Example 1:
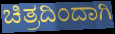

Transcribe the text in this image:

ಚಿತ್ರದಿಂದಾಗಿ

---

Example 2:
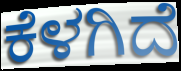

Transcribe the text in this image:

ಕೆಳಗಿದೆ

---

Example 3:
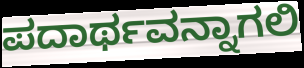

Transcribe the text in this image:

ಪದಾರ್ಥವನ್ನಾಗಲಿ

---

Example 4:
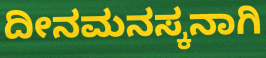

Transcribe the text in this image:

ದೀನಮನಸ್ಕನಾಗಿ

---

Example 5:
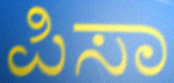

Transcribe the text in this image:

ಪಿಸಾ